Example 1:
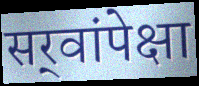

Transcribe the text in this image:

सर्वांपेक्षा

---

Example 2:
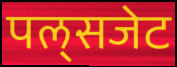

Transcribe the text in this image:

पल्सजेट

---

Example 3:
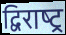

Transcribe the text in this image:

द्विराष्ट्र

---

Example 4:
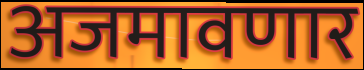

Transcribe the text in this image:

अजमावणार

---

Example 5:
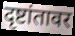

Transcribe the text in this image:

दृष्टांतावर